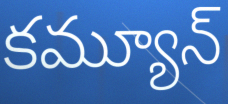
కమ్యూన్